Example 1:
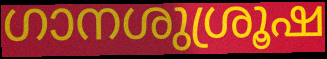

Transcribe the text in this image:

ഗാനശുശ്രൂഷ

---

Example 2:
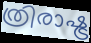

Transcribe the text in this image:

ത്രിരാഷ്ട്ര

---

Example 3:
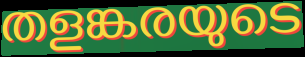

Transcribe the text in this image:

തളങ്കരയുടെ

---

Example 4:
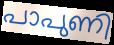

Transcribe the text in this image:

പാപുണി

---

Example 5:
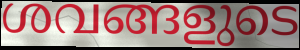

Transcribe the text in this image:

ശവങ്ങളുടെ